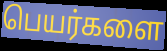
பெயர்களை